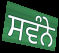
ਸਵੰਨੇ